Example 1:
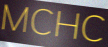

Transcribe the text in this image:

MCHC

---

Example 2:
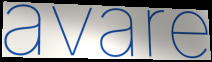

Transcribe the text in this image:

avare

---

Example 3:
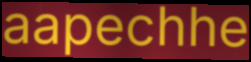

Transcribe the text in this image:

aapechhe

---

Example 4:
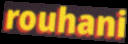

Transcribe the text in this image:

rouhani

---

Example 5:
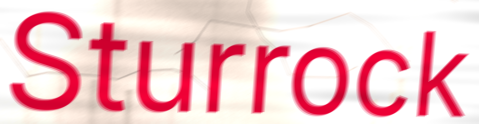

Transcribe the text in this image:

Sturrock